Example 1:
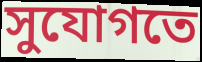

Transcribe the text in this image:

সুযোগতে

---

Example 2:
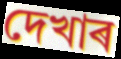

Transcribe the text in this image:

দেখাৰ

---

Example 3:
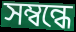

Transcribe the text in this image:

সম্বন্ধে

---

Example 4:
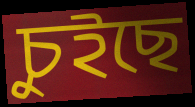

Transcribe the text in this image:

চুইছে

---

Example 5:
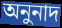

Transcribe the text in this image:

অনুনাদ